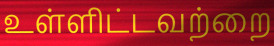
உள்ளிட்டவற்றை